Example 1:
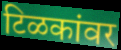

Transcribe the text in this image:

टिळकांवर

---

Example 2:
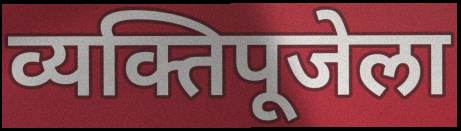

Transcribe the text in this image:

व्यक्तिपूजेला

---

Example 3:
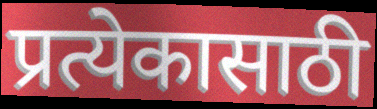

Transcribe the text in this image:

प्रत्येकासाठी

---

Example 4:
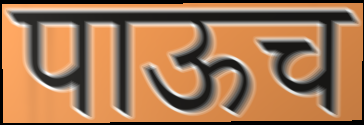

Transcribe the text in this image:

पाऊच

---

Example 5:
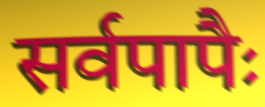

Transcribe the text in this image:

सर्वपापैः